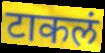
टाकलं